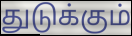
துடுக்கும்